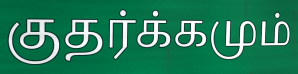
குதர்க்கமும்